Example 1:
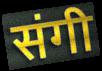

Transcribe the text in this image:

संगी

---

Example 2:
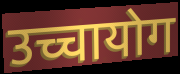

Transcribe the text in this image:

उच्चायोग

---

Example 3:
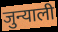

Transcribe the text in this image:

जुन्याली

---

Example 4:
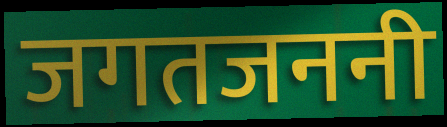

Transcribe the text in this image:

जगतजननी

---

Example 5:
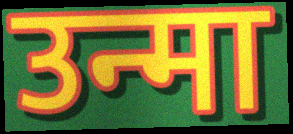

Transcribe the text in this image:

उन्मा